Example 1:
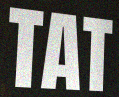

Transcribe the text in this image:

TAT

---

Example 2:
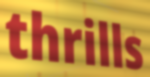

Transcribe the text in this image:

thrills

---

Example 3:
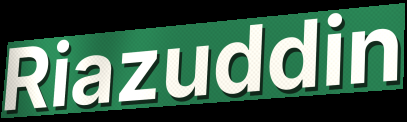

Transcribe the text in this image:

Riazuddin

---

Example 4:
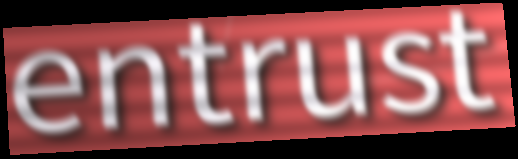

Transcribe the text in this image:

entrust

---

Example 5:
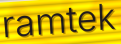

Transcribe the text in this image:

ramtek